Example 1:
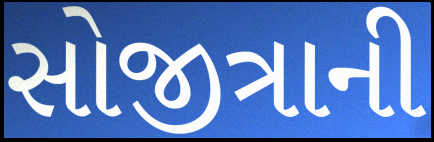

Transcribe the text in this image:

સોજીત્રાની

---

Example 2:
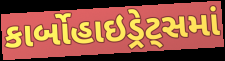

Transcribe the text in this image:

કાર્બોહાઇડ્રેટ્સમાં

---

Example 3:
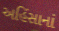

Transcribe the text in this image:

અહિંસાનાં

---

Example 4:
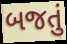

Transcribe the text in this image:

બજતું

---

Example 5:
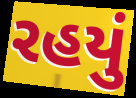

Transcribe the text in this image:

રહયું